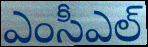
ఎంసీఎల్